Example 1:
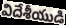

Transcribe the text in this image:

విదేశీయుడి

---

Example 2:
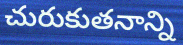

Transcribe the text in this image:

చురుకుతనాన్ని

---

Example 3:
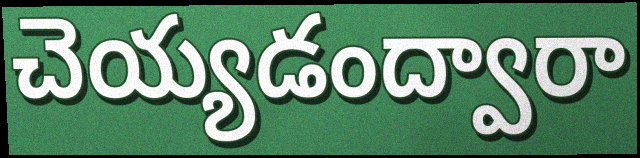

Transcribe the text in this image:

చెయ్యడంద్వారా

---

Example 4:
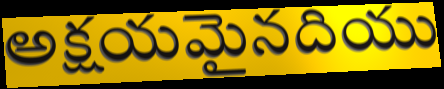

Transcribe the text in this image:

అక్షయమైనదియు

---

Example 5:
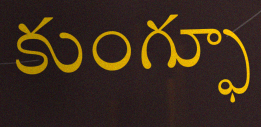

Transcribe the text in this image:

కుంగ్ఫూ